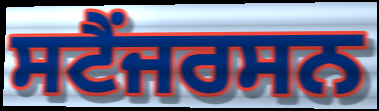
ਸਟੈਂਜਰਸਨ